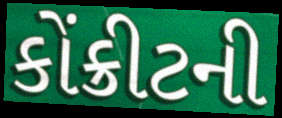
કોંક્રીટની